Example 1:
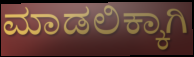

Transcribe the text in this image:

ಮಾಡಲಿಕ್ಕಾಗಿ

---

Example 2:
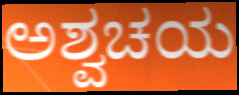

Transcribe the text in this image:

ಅಶ್ವಚಯ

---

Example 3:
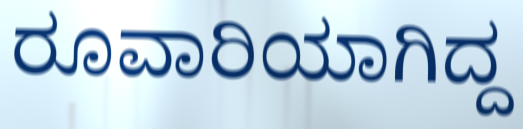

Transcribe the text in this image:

ರೂವಾರಿಯಾಗಿದ್ದ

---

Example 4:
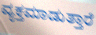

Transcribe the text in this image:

ವ್ಯಕ್ತಮಾಡುತ್ತಾರೆ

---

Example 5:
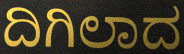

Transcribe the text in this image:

ದಿಗಿಲಾದ